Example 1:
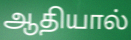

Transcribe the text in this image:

ஆதியால்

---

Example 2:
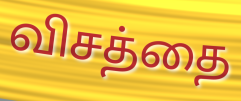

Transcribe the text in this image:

விசத்தை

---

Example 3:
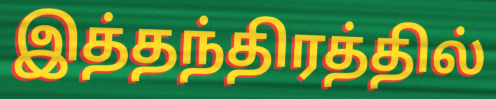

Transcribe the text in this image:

இத்தந்திரத்தில்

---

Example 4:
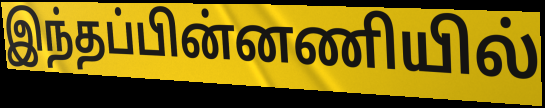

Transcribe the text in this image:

இந்தப்பின்னணியில்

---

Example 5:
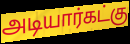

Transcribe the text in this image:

அடியார்கட்கு